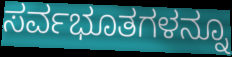
ಸರ್ವಭೂತಗಳನ್ನೂ